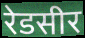
रेडसीर